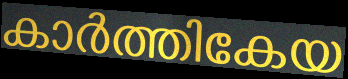
കാർത്തികേയ